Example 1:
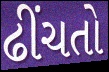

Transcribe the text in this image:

ઢીંચતો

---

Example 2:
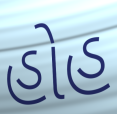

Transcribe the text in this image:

હોહ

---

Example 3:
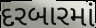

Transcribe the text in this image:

દરબારમાં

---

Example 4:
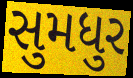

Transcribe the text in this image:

સુમધુર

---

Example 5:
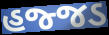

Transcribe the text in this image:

હજ્જડ